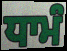
ਧਾਮੰ